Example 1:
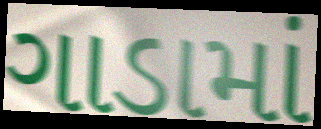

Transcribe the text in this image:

ગાડામાં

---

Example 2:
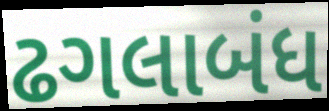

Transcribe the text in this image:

ઢગલાબંધ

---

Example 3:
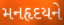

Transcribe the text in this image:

મનહૃદયને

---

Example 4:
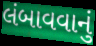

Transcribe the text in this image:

લંબાવવાનું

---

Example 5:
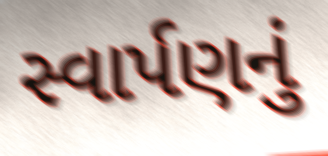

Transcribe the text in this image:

સ્વાર્પણનું